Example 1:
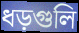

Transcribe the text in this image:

ধড়গুলি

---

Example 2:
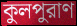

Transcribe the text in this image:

কুলপুরাণ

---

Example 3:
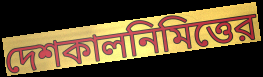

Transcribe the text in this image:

দেশকালনিমিত্তের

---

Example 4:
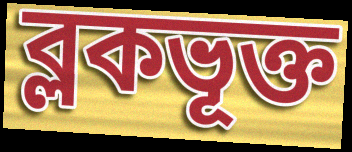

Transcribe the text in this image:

ব্লকভূক্ত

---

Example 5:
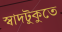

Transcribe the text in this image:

স্বাদটুকুতে